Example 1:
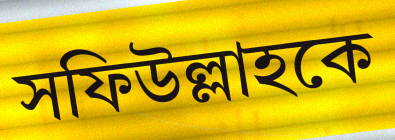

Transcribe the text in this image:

সফিউল্লাহকে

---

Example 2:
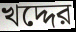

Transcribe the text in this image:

খদ্দের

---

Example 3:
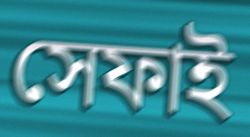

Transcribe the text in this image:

সেফাই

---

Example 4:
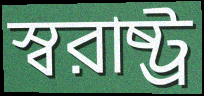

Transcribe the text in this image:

স্বরাষ্ট্র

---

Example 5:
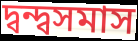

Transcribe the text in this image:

দ্বন্দ্বসমাস